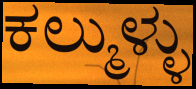
ಕಲ್ಮುಳ್ಳು